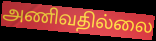
அணிவதில்லை